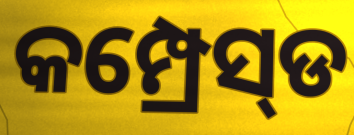
କମ୍ପ୍ରେସ୍‌ଡ